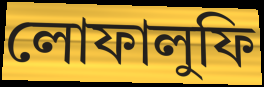
লোফালুফি